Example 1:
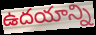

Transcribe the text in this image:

ఉదయాన్ని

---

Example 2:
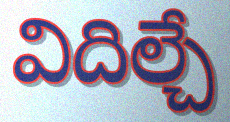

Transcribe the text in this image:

విదిల్చే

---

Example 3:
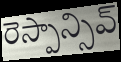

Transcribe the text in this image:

రెస్పాన్సివ్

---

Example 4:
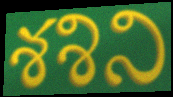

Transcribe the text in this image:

శశిని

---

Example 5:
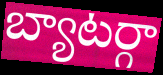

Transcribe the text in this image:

బ్యాటర్గా